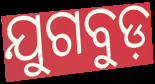
ଯୁଗବୁଡ଼